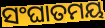
ସଂଘାତମୟ